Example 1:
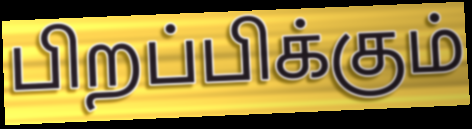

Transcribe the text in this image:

பிறப்பிக்கும்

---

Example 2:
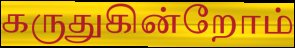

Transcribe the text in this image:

கருதுகின்றோம்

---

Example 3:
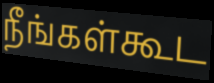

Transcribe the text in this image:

நீங்கள்கூட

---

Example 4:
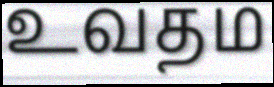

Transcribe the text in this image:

உவதம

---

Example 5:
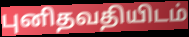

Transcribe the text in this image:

புனிதவதியிடம்